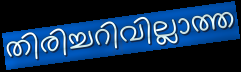
തിരിച്ചറിവില്ലാത്ത